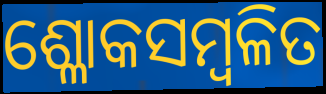
ଶ୍ଳୋକସମ୍ବଳିତ